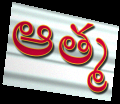
ఆత్మ